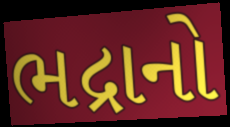
ભદ્રાનો